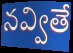
నవ్వితే